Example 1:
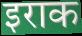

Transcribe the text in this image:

इराक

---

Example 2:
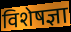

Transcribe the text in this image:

विशेषज्ञा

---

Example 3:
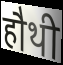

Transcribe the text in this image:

हौथी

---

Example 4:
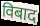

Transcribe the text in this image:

विबाद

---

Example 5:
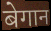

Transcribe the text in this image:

बेगान